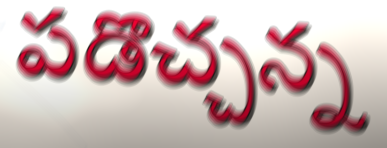
పడొచ్చన్న